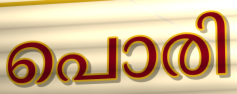
പൊരി